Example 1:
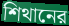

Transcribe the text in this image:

শিথানের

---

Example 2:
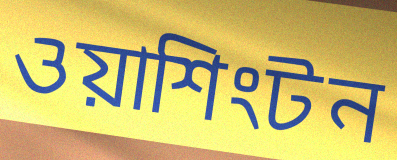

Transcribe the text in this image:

ওয়াশিংটন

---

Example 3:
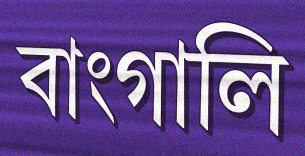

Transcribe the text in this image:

বাংগালি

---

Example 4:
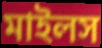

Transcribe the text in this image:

মাইলস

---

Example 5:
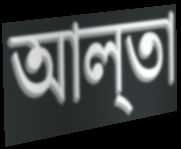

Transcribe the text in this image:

আল্‌তা